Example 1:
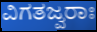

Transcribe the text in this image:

ವಿಗತಜ್ವರಾಃ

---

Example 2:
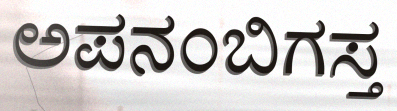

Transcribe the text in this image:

ಅಪನಂಬಿಗಸ್ತ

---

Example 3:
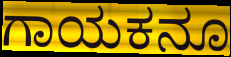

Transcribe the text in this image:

ಗಾಯಕನೂ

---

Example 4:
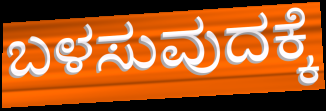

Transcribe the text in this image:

ಬಳಸುವುದಕ್ಕೆ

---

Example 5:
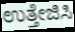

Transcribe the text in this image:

ಉತ್ತೇಜಿಸಿ